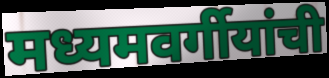
मध्यमवर्गीयांची